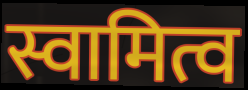
स्वामित्व